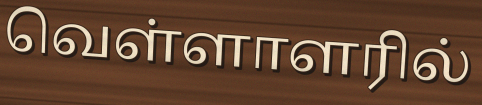
வெள்ளாளரில்